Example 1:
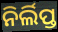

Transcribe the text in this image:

ନିର୍ଲିପ୍ତ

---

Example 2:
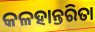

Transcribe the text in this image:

କଳହାନ୍ତରିତା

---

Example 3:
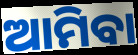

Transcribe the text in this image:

ଆମିବା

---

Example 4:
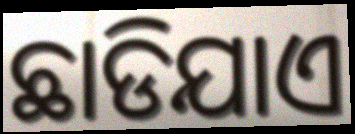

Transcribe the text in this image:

ଛାଡିଯାଏ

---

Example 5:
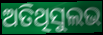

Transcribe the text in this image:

ଅତିଥିସୁଲଭ